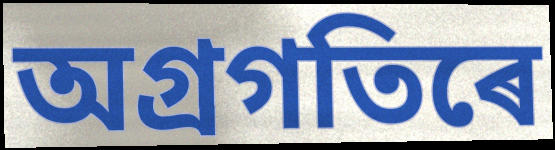
অগ্ৰগতিৰে